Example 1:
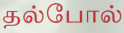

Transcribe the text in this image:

தல்போல்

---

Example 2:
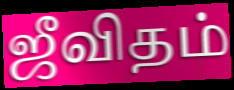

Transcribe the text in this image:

ஜீவிதம்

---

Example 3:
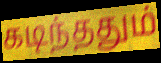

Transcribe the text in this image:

கடிந்ததும்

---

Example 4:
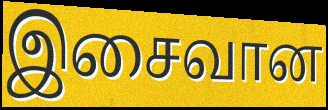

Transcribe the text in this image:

இசைவான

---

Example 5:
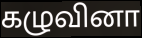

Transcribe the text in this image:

கழுவினா